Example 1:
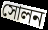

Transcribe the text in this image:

সোলন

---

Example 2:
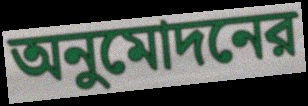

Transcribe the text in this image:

অনুমোদনের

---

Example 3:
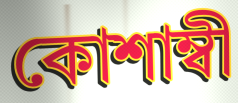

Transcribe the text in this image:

কোশাম্বী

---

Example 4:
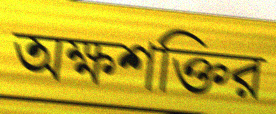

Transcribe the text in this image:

অক্ষশক্তির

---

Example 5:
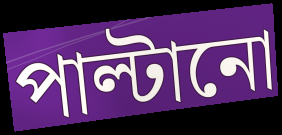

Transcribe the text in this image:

পাল্টানো